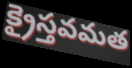
క్రైస్తవమత